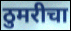
ठुमरीचा